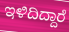
ಇಳಿದಿದ್ದಾರೆ